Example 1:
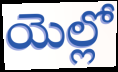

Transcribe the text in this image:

యెల్లో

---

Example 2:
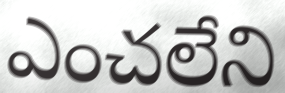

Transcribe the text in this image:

ఎంచలేని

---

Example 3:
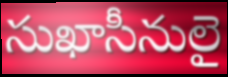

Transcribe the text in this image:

సుఖాసీనులై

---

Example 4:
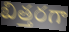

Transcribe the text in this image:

బిత్తరగా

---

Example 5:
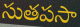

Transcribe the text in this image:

సుతపసా